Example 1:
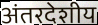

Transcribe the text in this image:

अंतरदेशीय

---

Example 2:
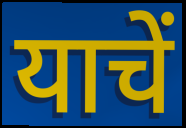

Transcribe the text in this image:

याचें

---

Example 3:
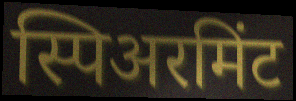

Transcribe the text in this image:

स्पिअरमिंट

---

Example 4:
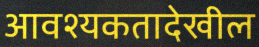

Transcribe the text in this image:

आवश्यकतादेखील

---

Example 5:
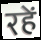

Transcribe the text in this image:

रहें